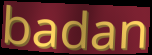
badan